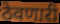
ठेवणारी